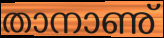
താനാണു്